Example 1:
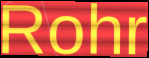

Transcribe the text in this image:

Rohr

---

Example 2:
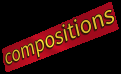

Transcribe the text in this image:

compositions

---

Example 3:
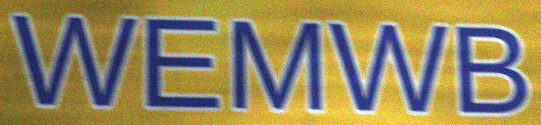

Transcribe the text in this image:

WEMWB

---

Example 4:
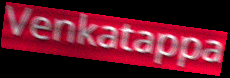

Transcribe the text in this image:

Venkatappa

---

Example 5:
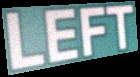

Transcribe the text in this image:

LEFT